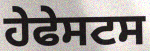
ਹੇਫੇਸਟਸ